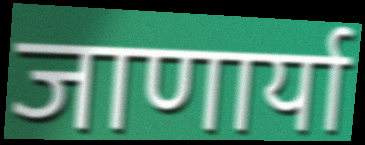
जाणार्या